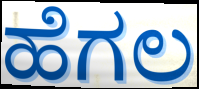
ಹೆಗಲ